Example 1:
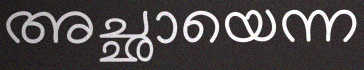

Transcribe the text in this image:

അച്ഛായെന്ന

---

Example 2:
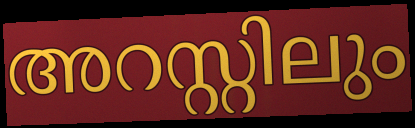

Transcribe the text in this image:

അറസ്റ്റിലും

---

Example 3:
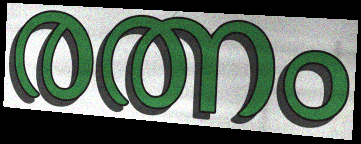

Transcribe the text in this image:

രത്നം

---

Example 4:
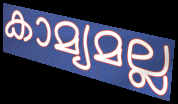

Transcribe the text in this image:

കാമ്യമല്ല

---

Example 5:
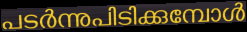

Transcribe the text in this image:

പടർന്നുപിടിക്കുമ്പോൾ